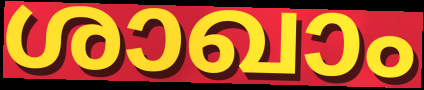
ശാഖാം